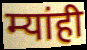
म्यांही